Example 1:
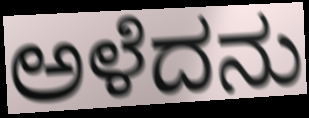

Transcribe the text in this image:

ಅಳೆದನು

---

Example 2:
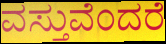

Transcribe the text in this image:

ವಸ್ತುವೆಂದರೆ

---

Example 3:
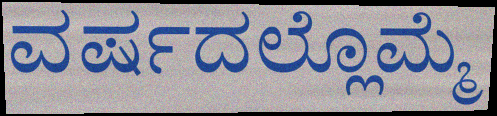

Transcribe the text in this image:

ವರ್ಷದಲ್ಲೊಮ್ಮೆ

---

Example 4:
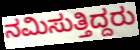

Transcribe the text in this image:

ನಮಿಸುತ್ತಿದ್ದರು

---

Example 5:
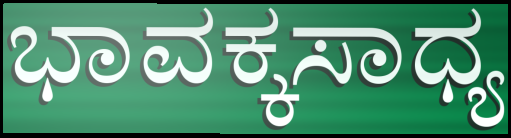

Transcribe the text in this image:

ಭಾವಕ್ಕಸಾಧ್ಯ